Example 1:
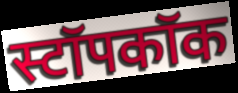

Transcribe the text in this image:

स्टॉपकॉक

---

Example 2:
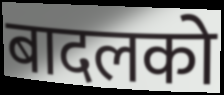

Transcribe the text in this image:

बादलको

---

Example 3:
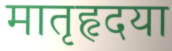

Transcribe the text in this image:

मातृहृदया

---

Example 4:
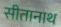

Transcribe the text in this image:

सीतानाथ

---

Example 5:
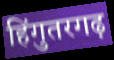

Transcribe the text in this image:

हिंगुतरगढ़